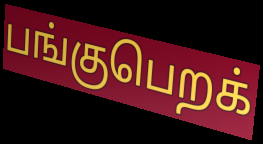
பங்குபெறக்